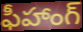
ఫీహాంగ్